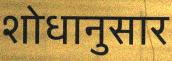
शोधानुसार